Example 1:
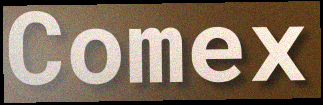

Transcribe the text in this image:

Comex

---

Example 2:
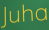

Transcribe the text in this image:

Juha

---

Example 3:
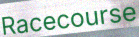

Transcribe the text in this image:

Racecourse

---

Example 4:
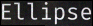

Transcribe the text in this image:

Ellipse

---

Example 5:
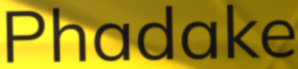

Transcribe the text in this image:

Phadake